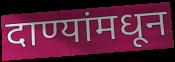
दाण्यांमधून